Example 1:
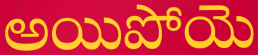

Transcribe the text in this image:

అయిపోయె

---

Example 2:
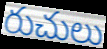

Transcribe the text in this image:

రుచులు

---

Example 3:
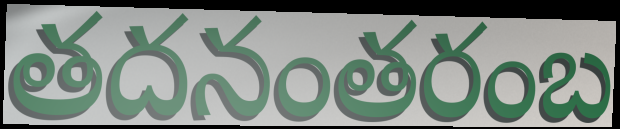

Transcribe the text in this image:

తదనంతరంబ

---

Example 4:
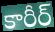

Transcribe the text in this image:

కారీర్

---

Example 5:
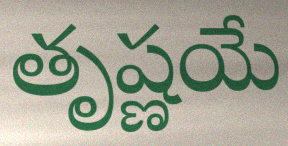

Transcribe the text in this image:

తృష్ణయే